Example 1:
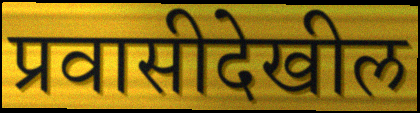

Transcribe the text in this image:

प्रवासीदेखील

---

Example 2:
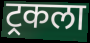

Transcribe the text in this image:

ट्रकला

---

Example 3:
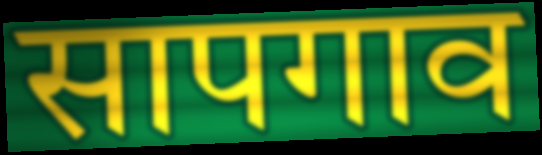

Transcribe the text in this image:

सापगाव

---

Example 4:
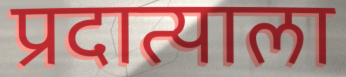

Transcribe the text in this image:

प्रदात्याला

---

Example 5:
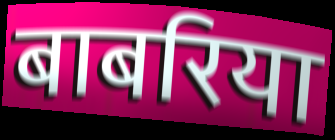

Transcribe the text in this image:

बाबरिया